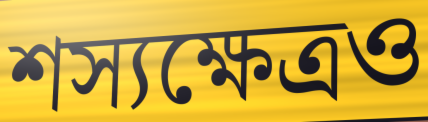
শস্যক্ষেত্রও